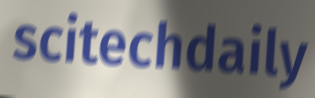
scitechdaily